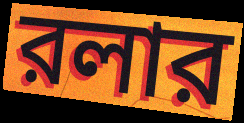
রলার